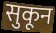
सुकून